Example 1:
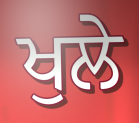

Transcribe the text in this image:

ਖੁਲੇ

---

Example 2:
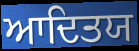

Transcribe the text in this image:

ਆਦਿਤਯ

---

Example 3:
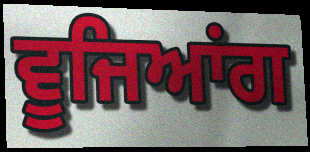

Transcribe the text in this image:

ਵੂਜਿਆਂਗ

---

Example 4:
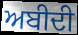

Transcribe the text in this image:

ਅਬੀਦੀ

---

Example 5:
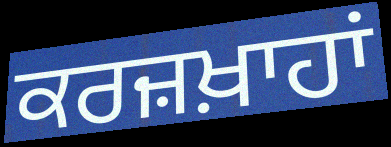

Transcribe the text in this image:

ਕਰਜ਼ਖ਼ਾਹਾਂ